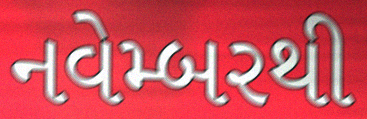
નવેમ્બરથી